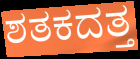
ಶತಕದತ್ತ